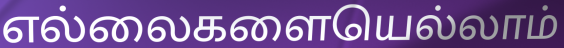
எல்லைகளையெல்லாம்